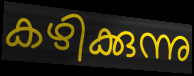
കഴിക്കുന്നു